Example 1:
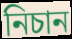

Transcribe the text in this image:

নিচান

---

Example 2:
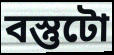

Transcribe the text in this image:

বস্তুটো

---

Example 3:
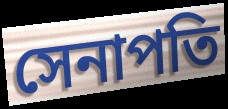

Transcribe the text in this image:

সেনাপতি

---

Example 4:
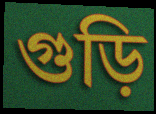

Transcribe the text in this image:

গুড়ি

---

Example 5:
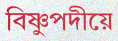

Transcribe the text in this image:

বিষ্ণুপদীয়ে